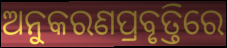
ଅନୁକରଣପ୍ରବୃତ୍ତିରେ